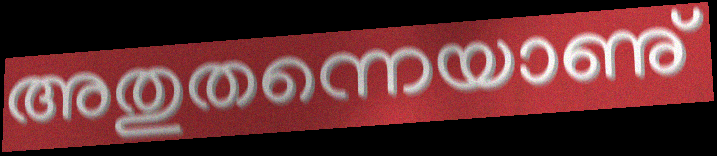
അതുതന്നെയാണു്